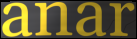
anar